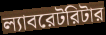
ল্যাবরেটরিটার